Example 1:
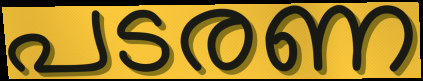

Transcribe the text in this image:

പടരണ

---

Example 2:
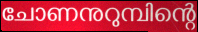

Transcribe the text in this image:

ചോണനുറുമ്പിന്റെ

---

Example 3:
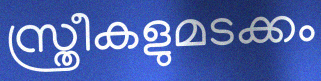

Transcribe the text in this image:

സ്ത്രീകളുമടക്കം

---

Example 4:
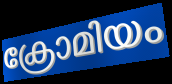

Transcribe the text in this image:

ക്രോമിയം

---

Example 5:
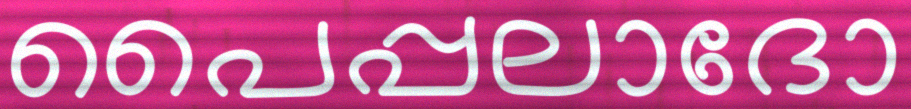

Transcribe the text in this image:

പൈപ്പലാദോ